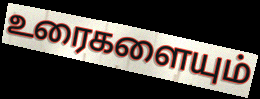
உரைகளையும்